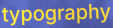
typography